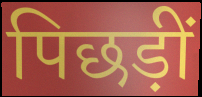
पिछड़ीं